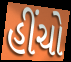
હીંચો